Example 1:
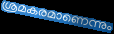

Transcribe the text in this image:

ശ്രമകരമാണെന്നും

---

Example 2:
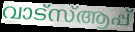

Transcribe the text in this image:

വാട്സ്ആപ്പ്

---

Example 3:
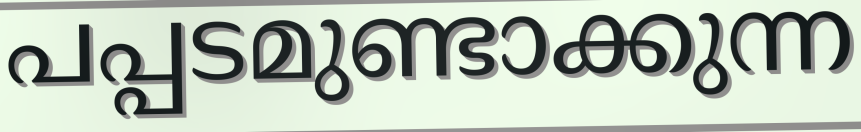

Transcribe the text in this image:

പപ്പടമുണ്ടാക്കുന്ന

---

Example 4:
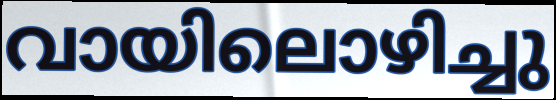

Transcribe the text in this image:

വായിലൊഴിച്ചു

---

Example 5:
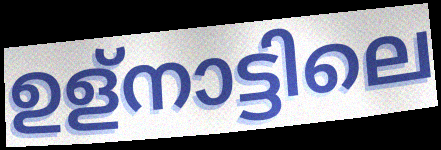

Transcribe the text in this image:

ഉള്നാട്ടിലെ